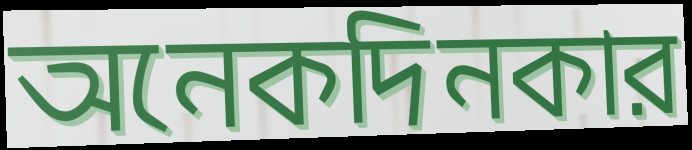
অনেকদিনকার